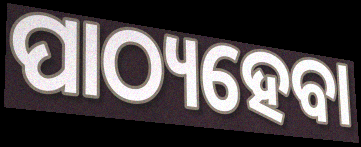
ପାଠ୍ୟହେବା